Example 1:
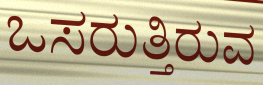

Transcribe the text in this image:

ಒಸರುತ್ತಿರುವ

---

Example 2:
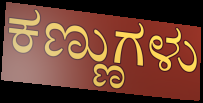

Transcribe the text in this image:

ಕಣ್ಣುಗಳು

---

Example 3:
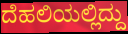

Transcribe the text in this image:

ದೆಹಲಿಯಲ್ಲಿದ್ದು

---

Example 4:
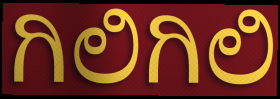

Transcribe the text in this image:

ಗಿಲಿಗಿಲಿ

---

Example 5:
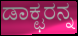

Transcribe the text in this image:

ಡಾಕ್ಟರನ್ನ